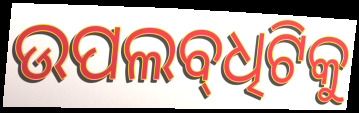
ଉପଲବ୍‌ଧିଟିକୁ